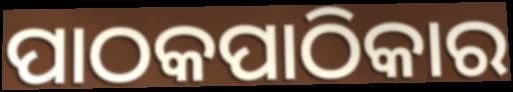
ପାଠକପାଠିକାର